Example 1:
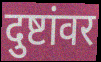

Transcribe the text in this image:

दुष्टांवर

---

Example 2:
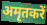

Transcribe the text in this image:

अमृतकरें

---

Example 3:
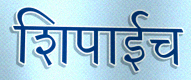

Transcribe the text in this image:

शिपाईच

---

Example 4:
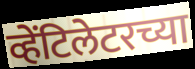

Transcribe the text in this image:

व्हेंटिलेटरच्या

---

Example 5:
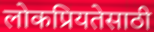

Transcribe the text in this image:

लोकप्रियतेसाठी